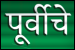
पूर्वीचे